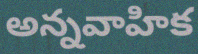
అన్నవాహిక